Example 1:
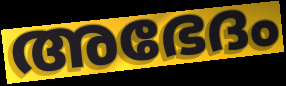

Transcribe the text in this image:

അഭേദം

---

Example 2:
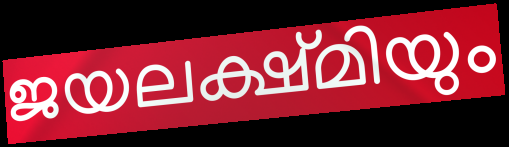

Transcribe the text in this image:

ജയലക്ഷ്മിയും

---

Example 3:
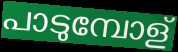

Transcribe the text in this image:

പാടുമ്പോള്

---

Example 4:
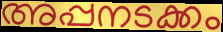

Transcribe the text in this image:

അപ്പനടക്കം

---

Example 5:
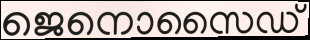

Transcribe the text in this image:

ജെനൊസൈഡ്